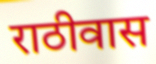
राठीवास